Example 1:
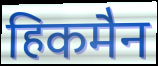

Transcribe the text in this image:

हिकमैन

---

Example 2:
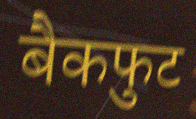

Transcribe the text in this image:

बैकफुट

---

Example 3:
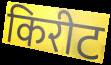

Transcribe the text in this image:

किरीट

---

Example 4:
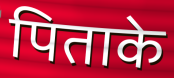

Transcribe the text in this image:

पिताके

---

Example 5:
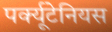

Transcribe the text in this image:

पर्क्यूटेनियस